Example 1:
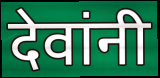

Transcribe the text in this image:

देवांनी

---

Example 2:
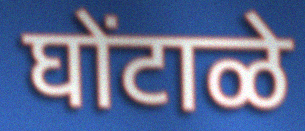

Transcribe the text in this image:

घोंटाळे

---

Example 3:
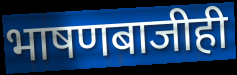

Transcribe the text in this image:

भाषणबाजीही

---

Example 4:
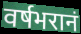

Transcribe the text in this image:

वर्षभरानं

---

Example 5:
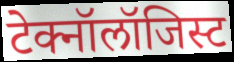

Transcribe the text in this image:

टेक्नॉलॉजिस्ट